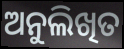
ଅନୁଲିଖିତ